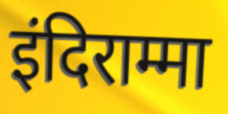
इंदिराम्मा